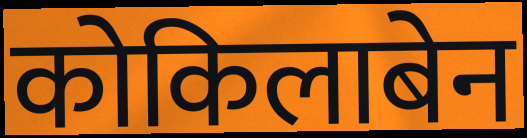
कोकिलाबेन